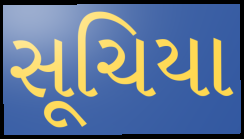
સૂચિયા